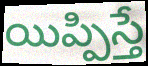
యిప్పిస్తే